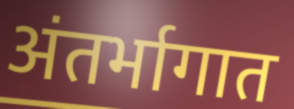
अंतर्भागात